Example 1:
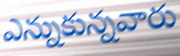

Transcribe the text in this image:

ఎన్నుకున్నవారు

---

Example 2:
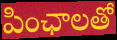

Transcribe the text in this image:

పింఛాలతో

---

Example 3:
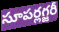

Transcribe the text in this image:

సూపర్లగ్జరీ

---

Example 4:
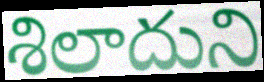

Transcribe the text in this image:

శిలాదుని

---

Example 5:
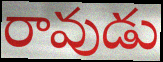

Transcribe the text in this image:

రావుడు